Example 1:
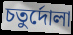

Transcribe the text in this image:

চতুর্দোলা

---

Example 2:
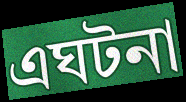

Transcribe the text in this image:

এঘটনা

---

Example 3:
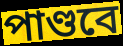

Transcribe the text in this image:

পাণ্ডবে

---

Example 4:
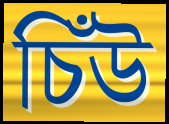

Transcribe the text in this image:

চিঁউ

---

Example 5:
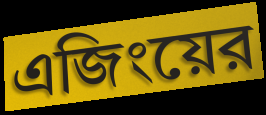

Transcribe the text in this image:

এজিংয়ের